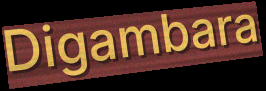
Digambara